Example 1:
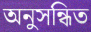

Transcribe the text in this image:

অনুসন্ধিত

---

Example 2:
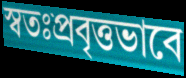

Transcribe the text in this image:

স্বতঃপ্রবৃত্তভাবে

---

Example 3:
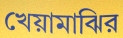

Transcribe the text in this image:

খেয়ামাঝির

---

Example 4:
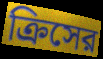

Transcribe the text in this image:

ক্রিসের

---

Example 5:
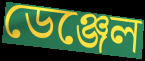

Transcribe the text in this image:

ডেঞ্জেল